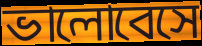
ভালোবেসে